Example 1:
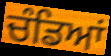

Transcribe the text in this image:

ਚੰਡਿਆਂ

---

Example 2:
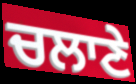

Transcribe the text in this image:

ਚਲਾਣੇ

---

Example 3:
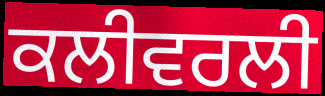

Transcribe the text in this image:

ਕਲੀਵਰਲੀ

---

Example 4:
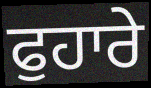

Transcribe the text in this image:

ਫੁਹਾਰੇ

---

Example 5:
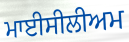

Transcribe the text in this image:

ਮਾਈਸੀਲੀਅਮ